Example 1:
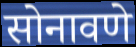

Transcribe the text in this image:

सोनावणे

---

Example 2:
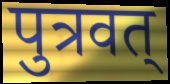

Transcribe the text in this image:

पुत्रवत्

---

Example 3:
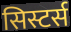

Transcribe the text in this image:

सिस्टर्स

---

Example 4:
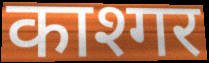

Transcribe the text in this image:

काश्गर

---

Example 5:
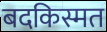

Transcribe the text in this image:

बदकिस्मत